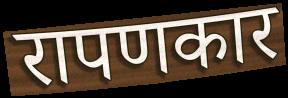
रापणकार